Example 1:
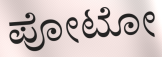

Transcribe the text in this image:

ಪೋಟೋ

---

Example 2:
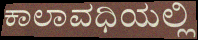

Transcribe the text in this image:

ಕಾಲಾವಧಿಯಲ್ಲಿ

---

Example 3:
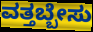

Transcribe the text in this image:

ವತ್ತಬ್ಬೇಸು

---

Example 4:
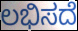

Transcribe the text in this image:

ಲಭಿಸದೆ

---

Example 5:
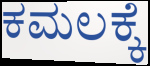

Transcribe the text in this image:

ಕಮಲಕ್ಕೆ